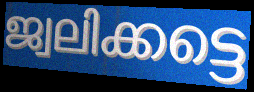
ജ്വലിക്കട്ടെ